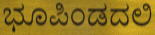
ಭೂಪಿಂಡದಲಿ